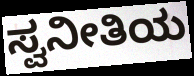
ಸ್ವನೀತಿಯ